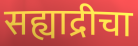
सह्याद्रीचा